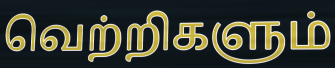
வெற்றிகளும்